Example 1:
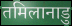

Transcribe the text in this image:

तमिलानाडु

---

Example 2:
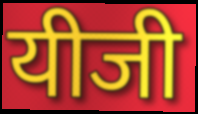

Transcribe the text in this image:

यीजी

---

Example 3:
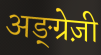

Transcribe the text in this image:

अङ्ग्रेज़ी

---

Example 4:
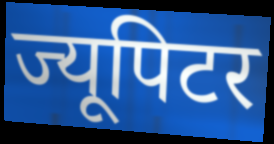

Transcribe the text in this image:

ज्यूपिटर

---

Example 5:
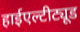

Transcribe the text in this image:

हाईएल्टीट्यूड